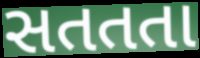
સતતતા